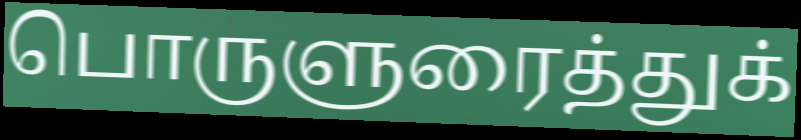
பொருளுரைத்துக்